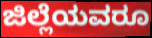
ಜಿಲ್ಲೆಯವರೂ